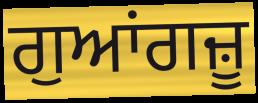
ਗੁਆਂਗਜ਼ੂ